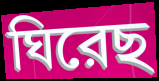
ঘিরেছ